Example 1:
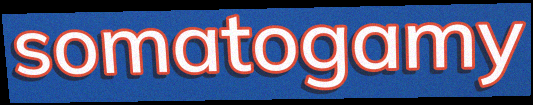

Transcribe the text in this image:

somatogamy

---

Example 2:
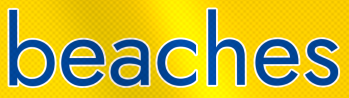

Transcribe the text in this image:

beaches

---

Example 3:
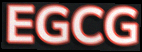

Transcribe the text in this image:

EGCG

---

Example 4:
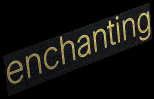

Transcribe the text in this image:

enchanting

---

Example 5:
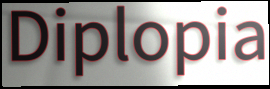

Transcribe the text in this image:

Diplopia